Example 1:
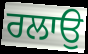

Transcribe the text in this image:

ਰਲਾਉ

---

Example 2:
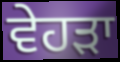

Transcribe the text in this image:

ਵੇਹੜਾ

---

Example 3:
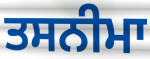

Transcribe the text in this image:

ਤਸਨੀਮਾ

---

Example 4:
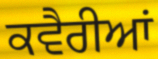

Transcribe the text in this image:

ਕਵੈਰੀਆਂ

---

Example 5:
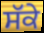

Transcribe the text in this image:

ਸੱਕੇ